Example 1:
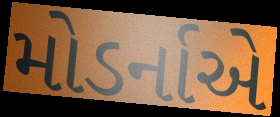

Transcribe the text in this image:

મોડર્નાએ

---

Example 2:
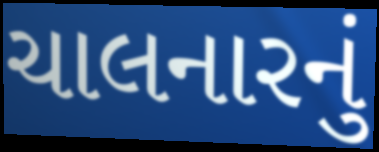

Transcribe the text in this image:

ચાલનારનું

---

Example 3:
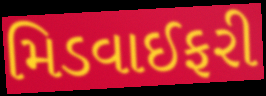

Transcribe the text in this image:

મિડવાઈફરી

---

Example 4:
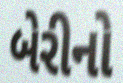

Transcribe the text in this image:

બેરીનો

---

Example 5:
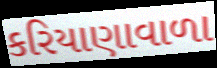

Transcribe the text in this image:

કરિયાણાવાળા